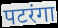
पटरंगा